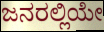
ಜನರಲ್ಲಿಯೇ